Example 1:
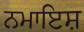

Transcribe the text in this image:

ਨਮਾਇਸ਼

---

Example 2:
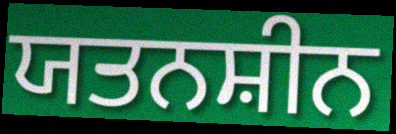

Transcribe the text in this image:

ਯਤਨਸ਼ੀਨ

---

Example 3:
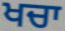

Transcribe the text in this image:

ਖਚਾ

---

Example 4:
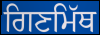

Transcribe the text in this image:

ਗਿਣਮਿੱਥ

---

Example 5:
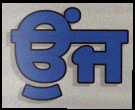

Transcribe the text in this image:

ਉੰਜ